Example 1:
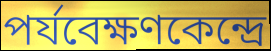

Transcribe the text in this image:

পর্যবেক্ষণকেন্দ্রে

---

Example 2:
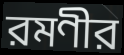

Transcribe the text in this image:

রমণীর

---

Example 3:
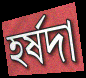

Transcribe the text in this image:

হর্ষদা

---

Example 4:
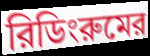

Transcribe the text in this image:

রিডিংরুমের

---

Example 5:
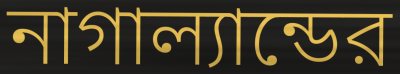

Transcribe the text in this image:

নাগাল্যান্ডের